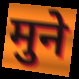
मुने